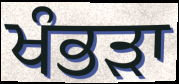
ਖੰਭੜਾ